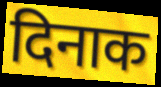
दिनाक